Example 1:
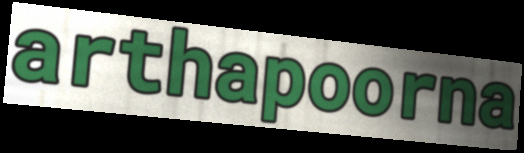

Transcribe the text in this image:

arthapoorna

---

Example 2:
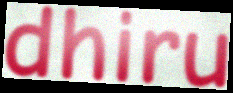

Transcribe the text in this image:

dhiru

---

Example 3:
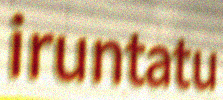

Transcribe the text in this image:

iruntatu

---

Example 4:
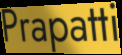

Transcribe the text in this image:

Prapatti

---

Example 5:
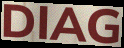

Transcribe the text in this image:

DIAG